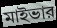
মাইভার